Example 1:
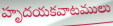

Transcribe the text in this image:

హృదయకవాటములు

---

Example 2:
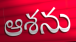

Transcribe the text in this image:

ఆశను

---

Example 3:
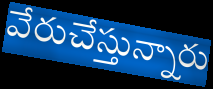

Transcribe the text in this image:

వేరుచేస్తున్నారు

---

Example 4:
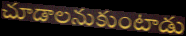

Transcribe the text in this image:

చూడాలనుకుంటాడు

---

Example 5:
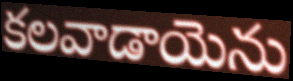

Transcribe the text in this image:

కలవాడాయెను